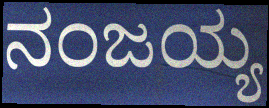
ನಂಜಯ್ಯ